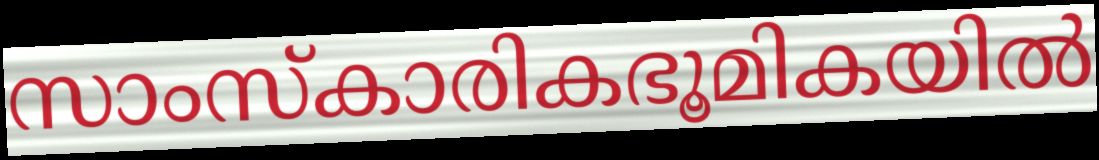
സാംസ്കാരികഭൂമികയിൽ